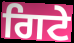
ਗਿਟੇ